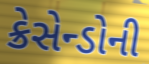
ક્રેસેન્ડોની